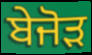
ਬੇਜੋੜ